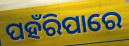
ପହଁରିପାରେ